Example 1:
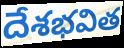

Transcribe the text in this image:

దేశభవిత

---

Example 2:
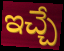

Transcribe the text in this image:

ఇచ్చే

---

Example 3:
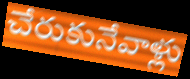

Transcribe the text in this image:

చేరుకునేవాళ్లు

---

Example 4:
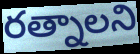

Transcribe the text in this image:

రత్నాలని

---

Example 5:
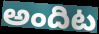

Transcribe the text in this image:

అందిట